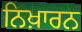
ਨਿਖ਼ਾਰਨ